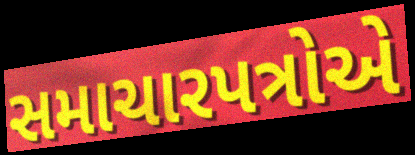
સમાચારપત્રોએ